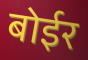
बोईर